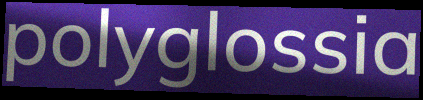
polyglossia